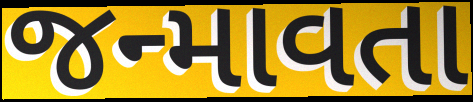
જન્માવતા